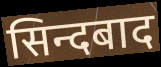
सिन्दबाद